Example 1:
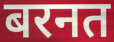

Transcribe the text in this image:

बरनत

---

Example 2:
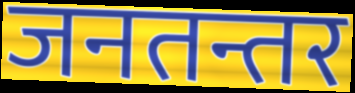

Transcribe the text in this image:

जनतन्तर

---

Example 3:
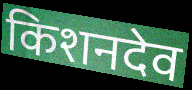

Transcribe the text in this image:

किशनदेव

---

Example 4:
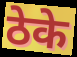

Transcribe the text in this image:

ठेके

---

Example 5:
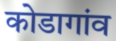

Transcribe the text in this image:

कोडागांव